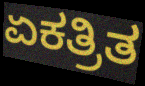
ಏಕತ್ರಿತ